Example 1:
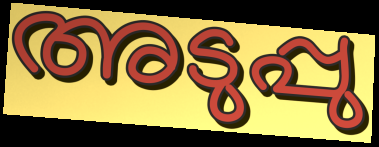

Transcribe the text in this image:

അടുപ്പു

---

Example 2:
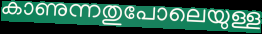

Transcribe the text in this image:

കാണുന്നതുപോലെയുള്ള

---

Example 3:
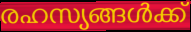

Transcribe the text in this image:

രഹസ്യങ്ങൾക്ക്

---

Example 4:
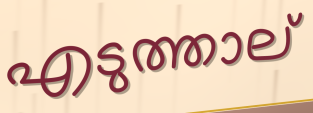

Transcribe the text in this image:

എടുത്താല്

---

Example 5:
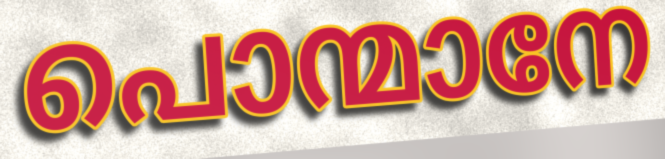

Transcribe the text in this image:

പൊന്മാനേ